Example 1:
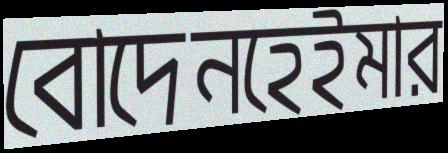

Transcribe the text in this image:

বোদেনহেইমার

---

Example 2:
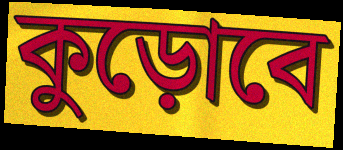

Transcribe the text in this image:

কুড়োবে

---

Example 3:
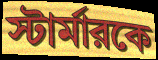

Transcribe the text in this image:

স্টার্মারকে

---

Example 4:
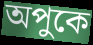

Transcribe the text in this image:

অপুকে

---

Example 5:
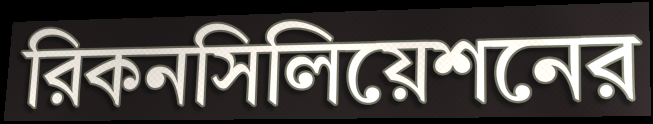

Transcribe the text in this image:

রিকনসিলিয়েশনের